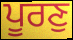
ਪੂਰਣੁ